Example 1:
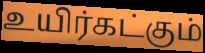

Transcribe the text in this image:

உயிர்கட்கும்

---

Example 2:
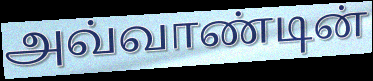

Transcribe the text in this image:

அவ்வாண்டின்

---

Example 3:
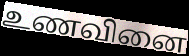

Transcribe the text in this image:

உணவினை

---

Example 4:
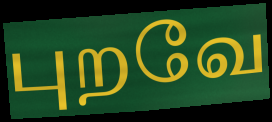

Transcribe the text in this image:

புறவே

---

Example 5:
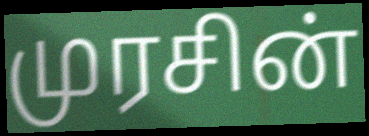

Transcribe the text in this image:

முரசின்